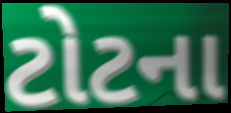
ટોટના